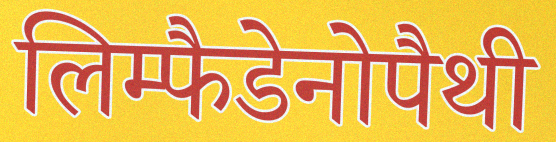
लिम्फैडेनोपैथी